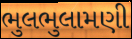
ભુલભુલામણી